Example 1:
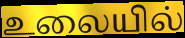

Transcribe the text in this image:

உலையில்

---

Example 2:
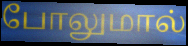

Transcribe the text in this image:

போலுமால்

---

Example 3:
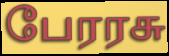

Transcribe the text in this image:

பேரரசு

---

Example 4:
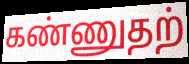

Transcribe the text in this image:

கண்ணுதற்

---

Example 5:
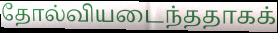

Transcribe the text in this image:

தோல்வியடைந்ததாகக்